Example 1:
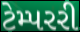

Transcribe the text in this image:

ટેમ્પરરી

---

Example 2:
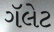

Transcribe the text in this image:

ગૅલેટ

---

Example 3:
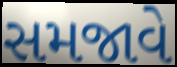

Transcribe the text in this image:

સમજાવે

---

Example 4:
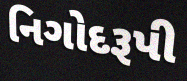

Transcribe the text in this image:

નિગોદરૂપી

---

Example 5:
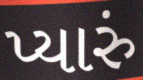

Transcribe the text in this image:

પ્યારું